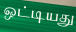
ஒட்டியது